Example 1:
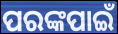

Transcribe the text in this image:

ପରଙ୍କପାଇଁ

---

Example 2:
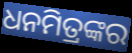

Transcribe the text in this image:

ଧନମିତ୍ରଙ୍କର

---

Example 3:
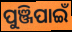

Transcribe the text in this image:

ପୁଞ୍ଜିପାଇଁ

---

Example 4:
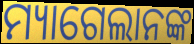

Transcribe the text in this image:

ମ୍ୟାଗେଲାନଙ୍କ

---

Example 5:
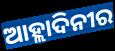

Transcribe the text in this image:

ଆହ୍ଲାଦିନୀର